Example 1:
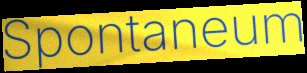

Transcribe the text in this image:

Spontaneum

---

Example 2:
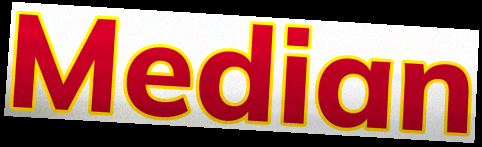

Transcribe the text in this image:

Median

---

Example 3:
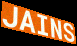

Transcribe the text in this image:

JAINS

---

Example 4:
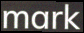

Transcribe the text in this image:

mark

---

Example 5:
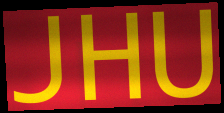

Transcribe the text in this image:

JHU